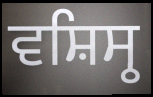
ਵਸ਼ਿਸ੍ਠ